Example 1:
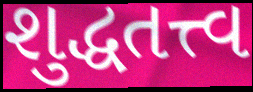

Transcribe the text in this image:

શુદ્ધતત્ત્વ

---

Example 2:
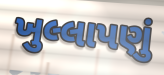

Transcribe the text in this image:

ખુલ્લાપણું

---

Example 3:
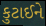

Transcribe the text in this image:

કુટાઈને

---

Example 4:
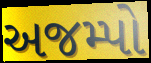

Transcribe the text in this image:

અજમ્પો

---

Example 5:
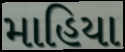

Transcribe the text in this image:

માહિયા